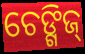
ଚେଙ୍ଗିଜ୍